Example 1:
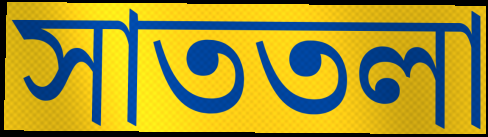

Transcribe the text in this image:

সাততলা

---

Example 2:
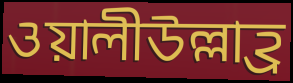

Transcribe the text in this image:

ওয়ালীউল্লাহ্র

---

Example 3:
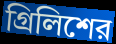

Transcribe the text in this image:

গ্রিলিশের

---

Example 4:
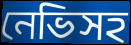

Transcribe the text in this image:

নেভিসহ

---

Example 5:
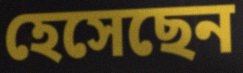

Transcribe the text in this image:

হেসেছেন